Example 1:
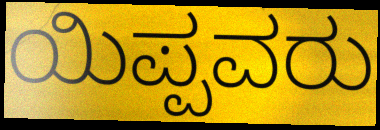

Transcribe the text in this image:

ಯಿಪ್ಪವರು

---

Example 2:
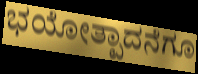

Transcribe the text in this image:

ಭಯೋತ್ಪಾದನೆಗೂ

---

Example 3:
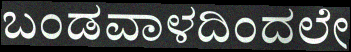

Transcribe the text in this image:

ಬಂಡವಾಳದಿಂದಲೇ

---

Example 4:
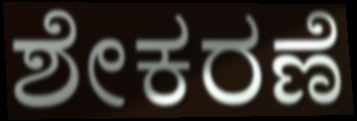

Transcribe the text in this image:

ಶೇಕರಣೆ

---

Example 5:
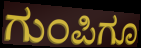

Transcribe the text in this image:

ಗುಂಪಿಗೂ